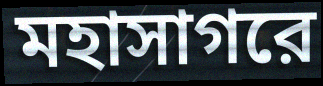
মহাসাগরে